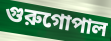
গুরুগোপাল